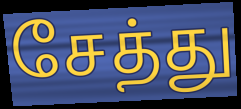
சேத்து